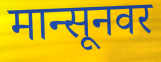
मान्सूनवर